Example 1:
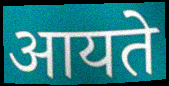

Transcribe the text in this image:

आयते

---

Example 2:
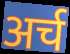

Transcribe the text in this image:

अर्च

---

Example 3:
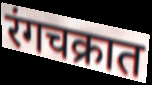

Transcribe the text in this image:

रंगचक्रात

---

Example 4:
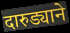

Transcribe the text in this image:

दारुड्याने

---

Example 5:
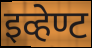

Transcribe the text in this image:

इव्हेण्ट